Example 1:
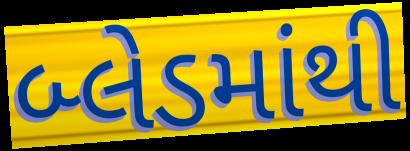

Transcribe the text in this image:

બ્લેડમાંથી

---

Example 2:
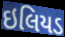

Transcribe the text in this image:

ઇલિયડ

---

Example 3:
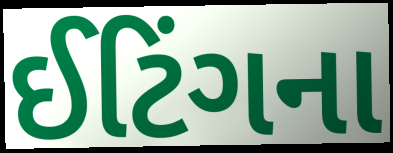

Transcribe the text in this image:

ઈટિંગના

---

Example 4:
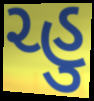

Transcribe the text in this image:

ચ્હુ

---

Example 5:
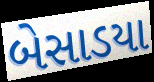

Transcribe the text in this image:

બેસાડયા